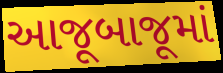
આજૂબાજૂમાં